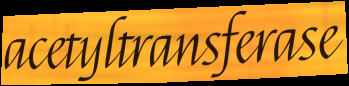
acetyltransferase